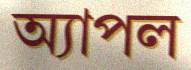
অ্যাপল